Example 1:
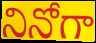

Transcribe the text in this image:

నినోగా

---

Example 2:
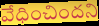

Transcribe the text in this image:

వేధించిందని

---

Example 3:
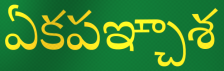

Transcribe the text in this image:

ఏకపఞ్చాశ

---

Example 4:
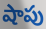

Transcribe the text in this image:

షాపు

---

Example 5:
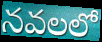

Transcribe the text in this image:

నవలలో